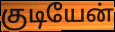
குடியேன்